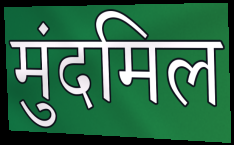
मुंदमिल